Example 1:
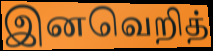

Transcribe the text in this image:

இனவெறித்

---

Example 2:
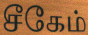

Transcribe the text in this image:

சீகேம்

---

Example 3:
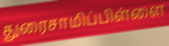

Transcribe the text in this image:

துரைசாமிப்பிள்ளை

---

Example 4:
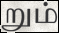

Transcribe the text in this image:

றும்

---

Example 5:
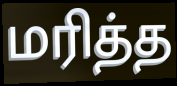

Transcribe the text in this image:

மரித்த